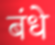
बंधे